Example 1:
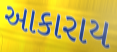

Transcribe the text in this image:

આકારાય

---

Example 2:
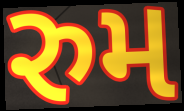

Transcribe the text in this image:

રુમ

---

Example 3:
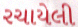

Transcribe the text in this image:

રચાયેલી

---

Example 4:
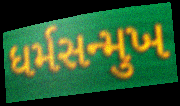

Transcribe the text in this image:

ધર્મસન્મુખ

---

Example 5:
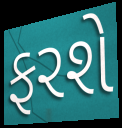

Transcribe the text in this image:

ફરશે